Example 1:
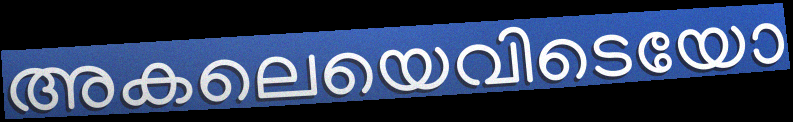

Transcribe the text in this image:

അകലെയെവിടെയോ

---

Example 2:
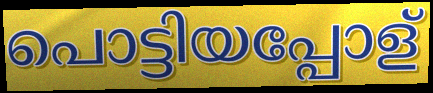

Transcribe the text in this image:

പൊട്ടിയപ്പോള്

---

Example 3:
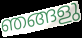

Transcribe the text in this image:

ഞങ്ങളു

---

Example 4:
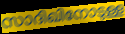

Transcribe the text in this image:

സാദിഖിനോടുള്ള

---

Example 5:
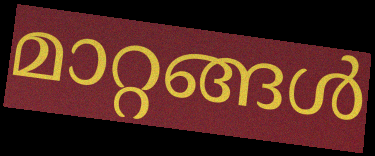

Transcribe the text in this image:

മാറ്റങ്ങൾ